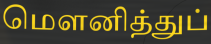
மெளனித்துப்